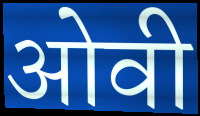
ओवी